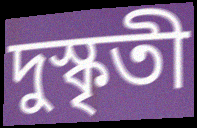
দুস্কৃতী